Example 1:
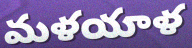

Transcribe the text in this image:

మళయాళ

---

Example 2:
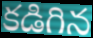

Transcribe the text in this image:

కడిగిన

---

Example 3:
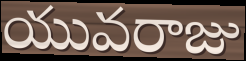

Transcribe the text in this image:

యువరాజు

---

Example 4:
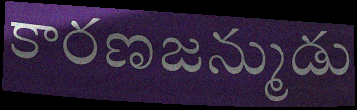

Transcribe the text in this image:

కారణజన్ముడు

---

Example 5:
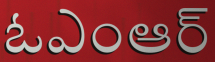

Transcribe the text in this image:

ఓఎంఆర్